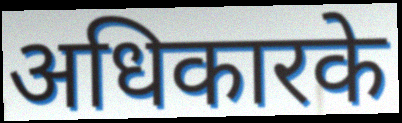
अधिकारके